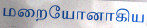
மறையோனாகிய